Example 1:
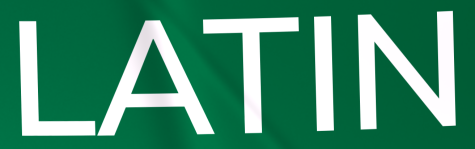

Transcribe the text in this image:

LATIN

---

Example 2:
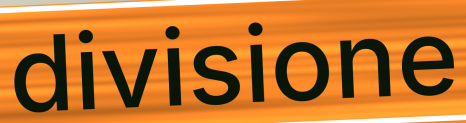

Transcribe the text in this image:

divisione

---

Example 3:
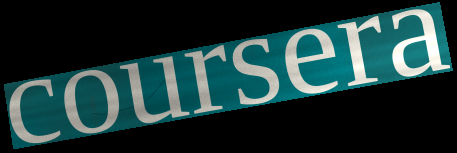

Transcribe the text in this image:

coursera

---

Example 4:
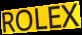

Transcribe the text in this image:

ROLEX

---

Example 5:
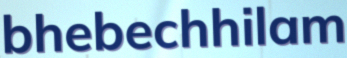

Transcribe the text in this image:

bhebechhilam